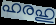
ഹരഹു